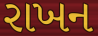
રાખન